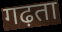
गढ़ता